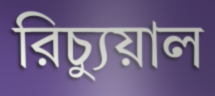
রিচ্যুয়াল